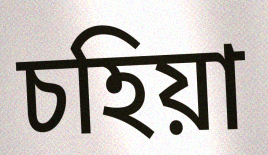
চহিয়া